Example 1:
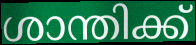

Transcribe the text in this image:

ശാന്തിക്ക്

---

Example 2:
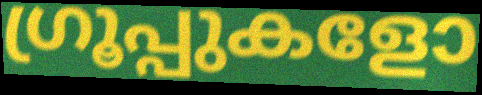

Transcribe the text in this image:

ഗ്രൂപ്പുകളോ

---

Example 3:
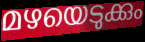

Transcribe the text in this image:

മഴയെടുക്കും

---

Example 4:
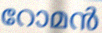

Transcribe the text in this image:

റോമൻ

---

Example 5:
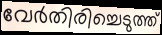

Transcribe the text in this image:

വേർതിരിച്ചെടുത്ത്